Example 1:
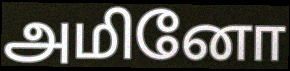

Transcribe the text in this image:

அமினோ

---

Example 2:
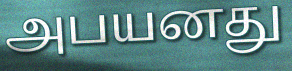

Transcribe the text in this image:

அபயனது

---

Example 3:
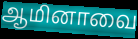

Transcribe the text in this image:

ஆமினாவை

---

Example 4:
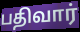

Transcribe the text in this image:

பதிவார்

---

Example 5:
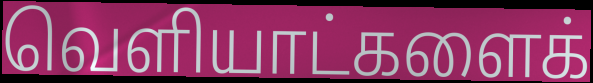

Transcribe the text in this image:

வெளியாட்களைக்